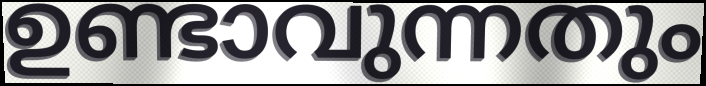
ഉണ്ടാവുന്നതും